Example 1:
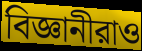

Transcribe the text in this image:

বিজ্ঞানীরাও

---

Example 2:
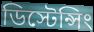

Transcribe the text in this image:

ডিস্টেন্সিং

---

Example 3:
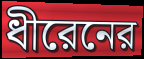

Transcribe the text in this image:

ধীরেনের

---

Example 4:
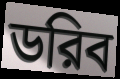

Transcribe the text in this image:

ডরিব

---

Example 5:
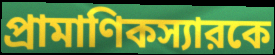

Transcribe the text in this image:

প্রামাণিকস্যারকে